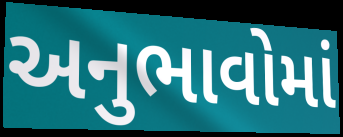
અનુભાવોમાં